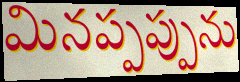
మినప్పప్పును